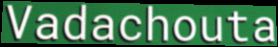
Vadachouta